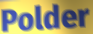
Polder